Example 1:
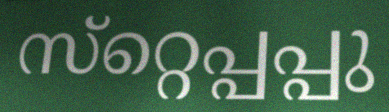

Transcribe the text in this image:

സ്‌റ്റെപ്പപ്പു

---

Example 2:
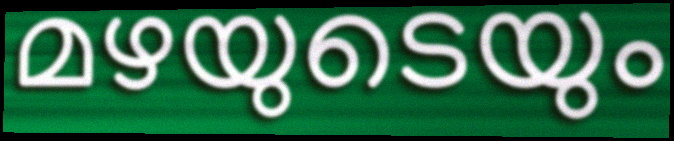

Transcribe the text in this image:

മഴയുടെയും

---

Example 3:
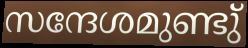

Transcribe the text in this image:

സന്ദേശമുണ്ടു്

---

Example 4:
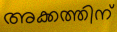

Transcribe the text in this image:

അക്കത്തിന്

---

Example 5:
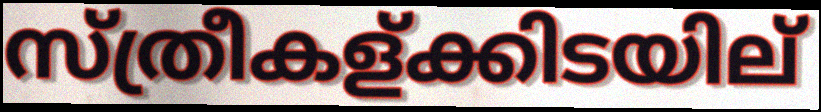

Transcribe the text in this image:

സ്ത്രീകള്ക്കിടയില്